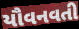
યૌવનવતી